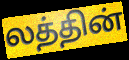
லத்தின்